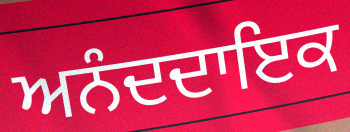
ਅਨੰਦਦਾਇਕ